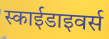
स्काईडाइवर्स